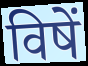
विषें